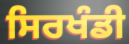
ਸਿਰਖੰਡੀ